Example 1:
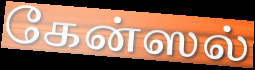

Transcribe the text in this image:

கேன்ஸல்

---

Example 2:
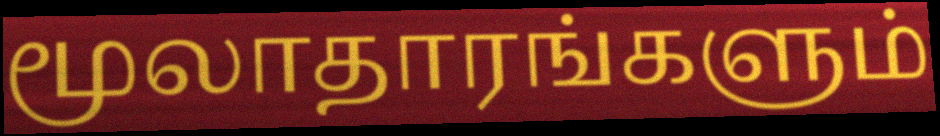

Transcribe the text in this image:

மூலாதாரங்களும்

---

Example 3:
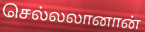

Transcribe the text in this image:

செல்லலானான்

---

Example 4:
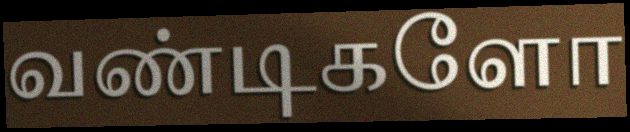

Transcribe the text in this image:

வண்டிகளோ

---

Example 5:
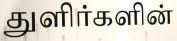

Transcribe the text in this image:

துளிர்களின்